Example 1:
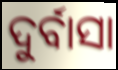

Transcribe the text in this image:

ଦୁର୍ବାସା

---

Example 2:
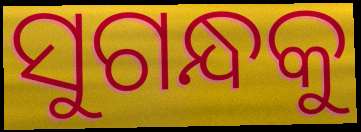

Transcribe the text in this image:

ସୁଗନ୍ଧକୁ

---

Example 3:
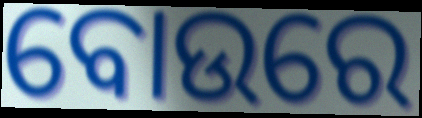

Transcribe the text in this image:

ବୋଉରେ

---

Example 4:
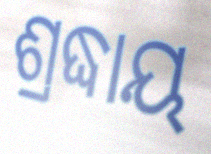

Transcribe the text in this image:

ଶ୍ରଦ୍ଧାୟ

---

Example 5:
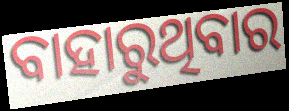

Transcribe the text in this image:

ବାହାରୁଥିବାର